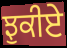
ਝੁਕੀਏ